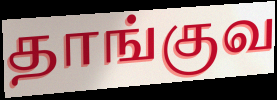
தாங்குவ